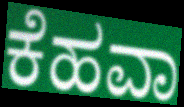
ಕೆಹವಾ